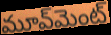
మూవ్‌మెంట్